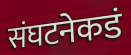
संघटनेकडं